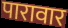
पारावार